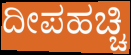
ದೀಪಹಚ್ಚಿ